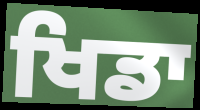
ਖਿਡਾ